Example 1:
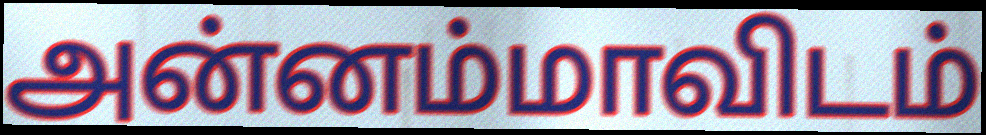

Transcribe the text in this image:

அன்னம்மாவிடம்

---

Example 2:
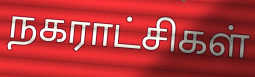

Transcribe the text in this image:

நகராட்சிகள்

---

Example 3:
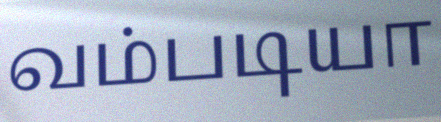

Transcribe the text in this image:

வம்படியா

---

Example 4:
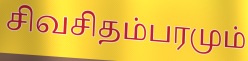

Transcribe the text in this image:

சிவசிதம்பரமும்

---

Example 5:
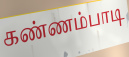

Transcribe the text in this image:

கண்ணம்பாடி